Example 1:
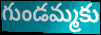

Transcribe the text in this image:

గుండమ్మకు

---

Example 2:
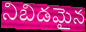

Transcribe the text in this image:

నిబిడమైన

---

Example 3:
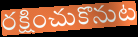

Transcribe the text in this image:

రక్షించుకొనుట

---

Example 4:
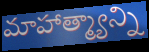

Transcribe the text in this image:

మాహాత్మ్యాన్ని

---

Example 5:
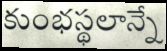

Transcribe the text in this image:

కుంభస్థలాన్నే